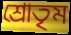
শ্রোতৃম